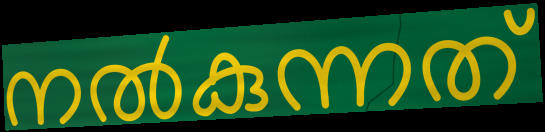
നൽകുന്നത്